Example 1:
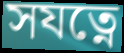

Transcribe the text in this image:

সযত্নে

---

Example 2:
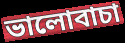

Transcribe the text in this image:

ভালোবাচা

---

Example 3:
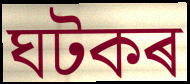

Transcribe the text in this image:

ঘটকৰ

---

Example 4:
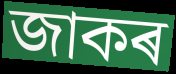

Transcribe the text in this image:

জাকৰ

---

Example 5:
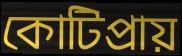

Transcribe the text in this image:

কোটিপ্ৰায়